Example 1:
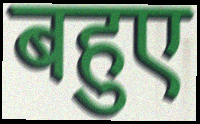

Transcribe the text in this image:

बहुए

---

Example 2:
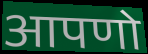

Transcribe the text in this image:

आपणो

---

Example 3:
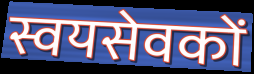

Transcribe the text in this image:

स्वयसेवकों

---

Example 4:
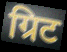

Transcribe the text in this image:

ग्रिट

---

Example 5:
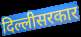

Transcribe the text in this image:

दिल्लीसरकार